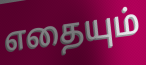
எதையும்